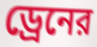
ড্রেনের